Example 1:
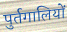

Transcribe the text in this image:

पुर्तगालियों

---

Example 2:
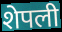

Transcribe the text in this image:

शेपली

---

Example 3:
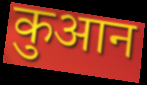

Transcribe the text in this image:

कुआन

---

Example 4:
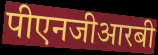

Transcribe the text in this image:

पीएनजीआरबी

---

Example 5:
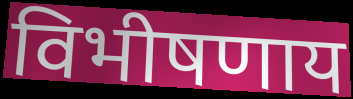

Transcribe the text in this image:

विभीषणाय